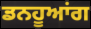
ਡਨਹੂਆਂਗ